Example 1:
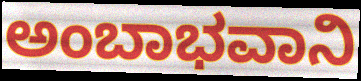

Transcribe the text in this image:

ಅಂಬಾಭವಾನಿ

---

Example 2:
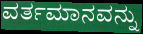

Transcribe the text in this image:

ವರ್ತಮಾನವನ್ನು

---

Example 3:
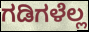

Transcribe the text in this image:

ಗಡಿಗಳೆಲ್ಲ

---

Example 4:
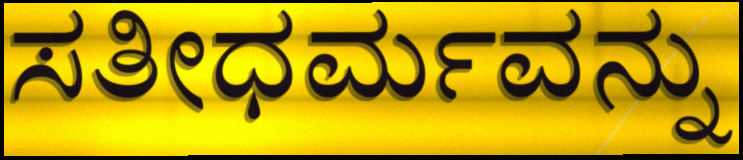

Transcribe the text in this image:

ಸತೀಧರ್ಮವನ್ನು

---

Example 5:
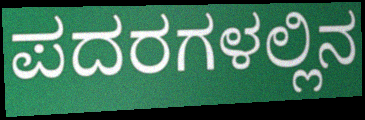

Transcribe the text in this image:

ಪದರಗಳಲ್ಲಿನ